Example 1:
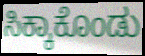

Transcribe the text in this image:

ಸಿಕ್ಕಾಕೊಂಡು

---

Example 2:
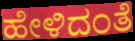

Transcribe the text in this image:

ಹೇಳಿದಂತೆ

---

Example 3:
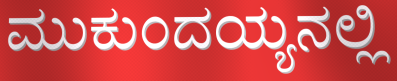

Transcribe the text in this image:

ಮುಕುಂದಯ್ಯನಲ್ಲಿ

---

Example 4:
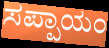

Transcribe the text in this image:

ಸಪ್ಪಾಯಂ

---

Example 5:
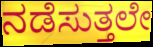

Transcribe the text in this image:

ನಡೆಸುತ್ತಲೇ